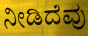
ನೀಡಿದೆವು